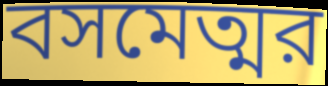
বসমেত্মর